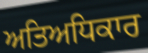
ਅਤਿਅਧਿਕਾਰ